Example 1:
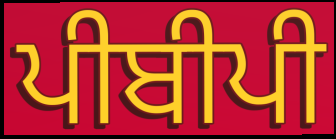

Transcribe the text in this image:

ਪੀਬੀਪੀ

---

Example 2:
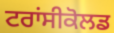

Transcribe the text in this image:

ਟਰਾਂਸੀਕੋਲਡ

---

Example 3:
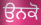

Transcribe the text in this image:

ਉਨਕੋ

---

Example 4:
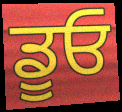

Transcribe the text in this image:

ਡੂਓ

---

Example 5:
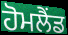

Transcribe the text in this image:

ਹੋਮਲੈਂਡ